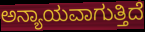
ಅನ್ಯಾಯವಾಗುತ್ತಿದೆ